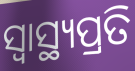
ସ୍ବାସ୍ଥ୍ୟପ୍ରତି